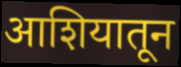
आशियातून